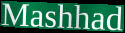
Mashhad